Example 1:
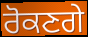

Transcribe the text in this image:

ਰੋਕਣਗੇ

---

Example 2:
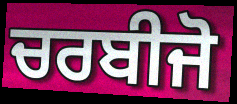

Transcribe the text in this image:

ਚਰਬੀਜੋ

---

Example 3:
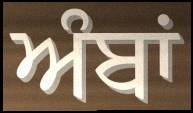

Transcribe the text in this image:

ਅੰਬਾਂ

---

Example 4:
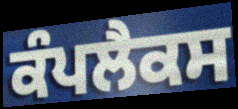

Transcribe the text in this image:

ਕੰਪਲੈਕਸ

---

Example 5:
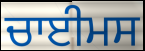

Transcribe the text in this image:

ਚਾਈਮਸ